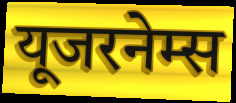
यूजरनेम्स